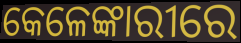
କେଳେଙ୍କାରୀରେ